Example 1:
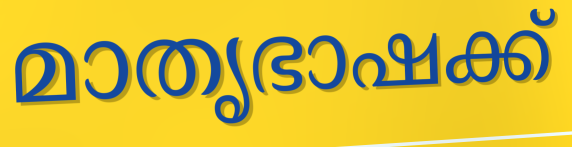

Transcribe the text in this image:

മാതൃഭാഷക്ക്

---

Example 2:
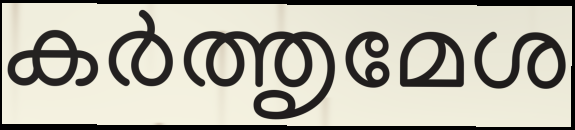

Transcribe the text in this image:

കർത്തൃമേശ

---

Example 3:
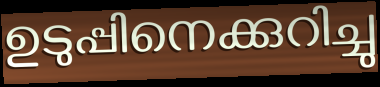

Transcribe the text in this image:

ഉടുപ്പിനെക്കുറിച്ചു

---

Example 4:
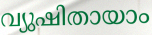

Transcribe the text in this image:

വ്യുഷിതായാം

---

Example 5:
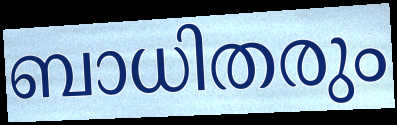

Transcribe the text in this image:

ബാധിതരും